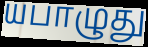
யபாழுது